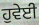
ਹੁਵੇਈ